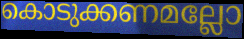
കൊടുക്കണമല്ലോ